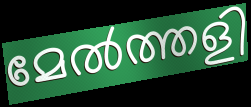
മേൽത്തളി